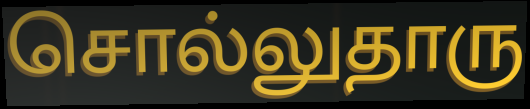
சொல்லுதாரு